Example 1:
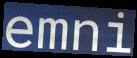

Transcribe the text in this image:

emni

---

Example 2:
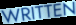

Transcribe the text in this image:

WRITTEN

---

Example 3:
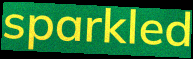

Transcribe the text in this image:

sparkled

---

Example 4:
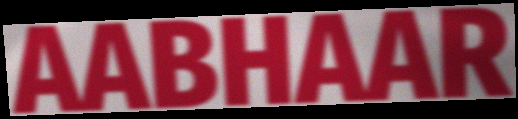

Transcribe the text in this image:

AABHAAR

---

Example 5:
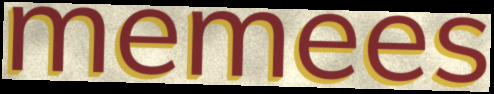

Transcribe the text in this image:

memees